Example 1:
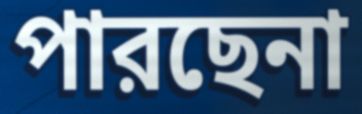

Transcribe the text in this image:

পারছেনা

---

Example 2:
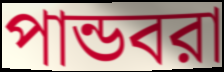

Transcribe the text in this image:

পান্ডবরা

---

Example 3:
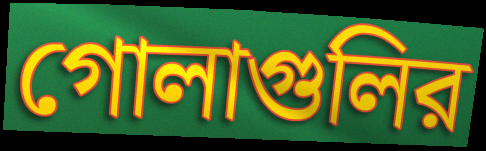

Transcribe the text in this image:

গোলাগুলির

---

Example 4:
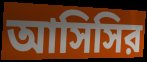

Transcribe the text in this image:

আসিসির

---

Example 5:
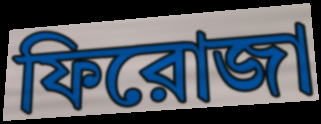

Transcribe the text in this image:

ফিরোজা